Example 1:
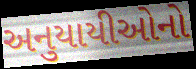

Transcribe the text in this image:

અનુયાયીઓનો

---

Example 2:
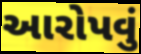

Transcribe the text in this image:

આરોપવું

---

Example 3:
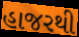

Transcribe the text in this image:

હાજરથી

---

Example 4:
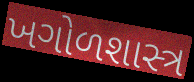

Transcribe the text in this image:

ખગોળશાસ્ત્ર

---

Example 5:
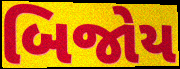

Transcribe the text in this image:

બિજોય